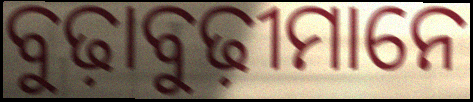
ବୁଢ଼ାବୁଢ଼ୀମାନେ